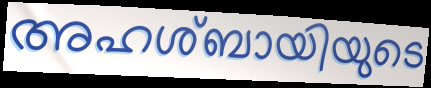
അഹശ്ബായിയുടെ